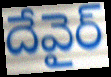
దేవైర్